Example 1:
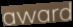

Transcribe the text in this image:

award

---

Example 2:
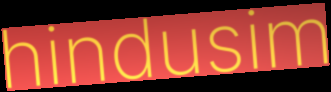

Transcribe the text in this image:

hindusim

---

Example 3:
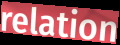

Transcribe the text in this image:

relation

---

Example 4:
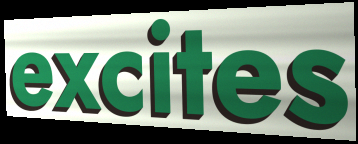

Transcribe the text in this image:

excites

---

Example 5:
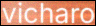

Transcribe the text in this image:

vicharo